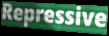
Repressive